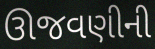
ઊજવણીની